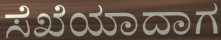
ಸೆಖೆಯಾದಾಗ